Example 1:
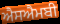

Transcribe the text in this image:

ਐਸਐਮਬੀ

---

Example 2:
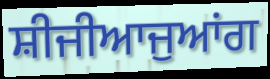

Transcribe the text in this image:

ਸ਼ੀਜੀਆਜੁਆਂਗ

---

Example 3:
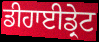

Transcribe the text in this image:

ਡੀਹਾਈਡ੍ਰੇਟ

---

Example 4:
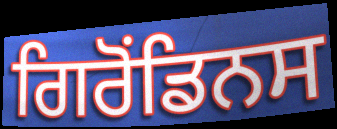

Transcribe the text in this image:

ਗਿਰੋਂਡਿਨਸ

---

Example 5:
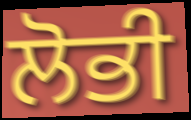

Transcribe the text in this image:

ਲੋਭੀ